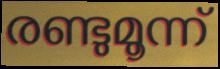
രണ്ടുമൂന്ന്